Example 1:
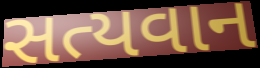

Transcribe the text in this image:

સત્યવાન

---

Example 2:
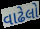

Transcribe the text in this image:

વાઢેલો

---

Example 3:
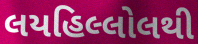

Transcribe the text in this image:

લયહિલ્લોલથી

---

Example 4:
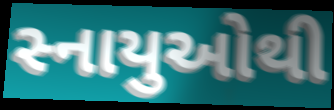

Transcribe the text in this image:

સ્નાયુઓથી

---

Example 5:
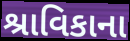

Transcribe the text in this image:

શ્રાવિકાના